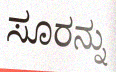
ಸೂರನ್ನು